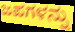
ಜಪಗಳನ್ನು